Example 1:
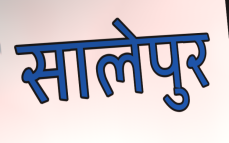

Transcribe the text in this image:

सालेपुर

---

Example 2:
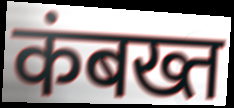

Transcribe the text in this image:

कंबख्त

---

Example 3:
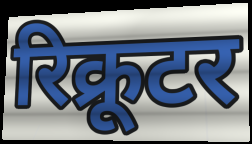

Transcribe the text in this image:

रिक्रूटर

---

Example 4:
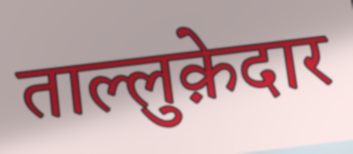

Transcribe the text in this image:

ताल्लुक़ेदार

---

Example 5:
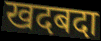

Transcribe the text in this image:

खदबदा